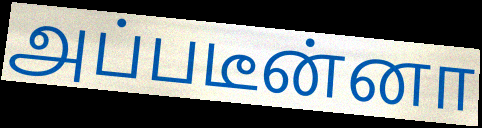
அப்படீன்னா